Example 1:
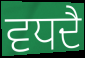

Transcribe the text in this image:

ਵਧਦੈ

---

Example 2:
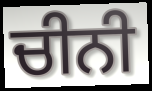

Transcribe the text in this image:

ਚੀਨੀ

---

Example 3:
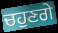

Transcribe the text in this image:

ਚਹੁਣਗੇ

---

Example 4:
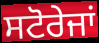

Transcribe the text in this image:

ਸਟੋਰੇਜਾਂ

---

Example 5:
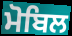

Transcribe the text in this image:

ਮੋਬਿਲ